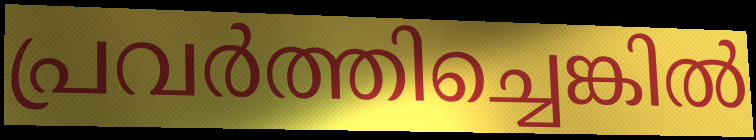
പ്രവർത്തിച്ചെങ്കിൽ